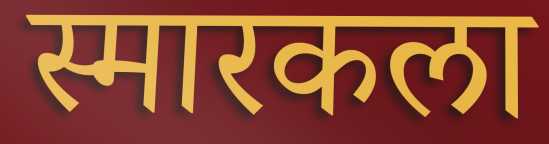
स्मारकला